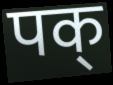
पक्